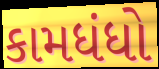
કામધંધો